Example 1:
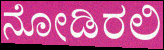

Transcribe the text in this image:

ನೋಡಿರಲಿ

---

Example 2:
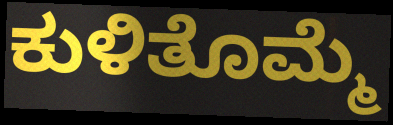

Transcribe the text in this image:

ಕುಳಿತೊಮ್ಮೆ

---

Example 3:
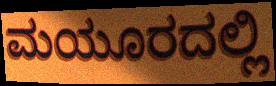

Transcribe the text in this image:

ಮಯೂರದಲ್ಲಿ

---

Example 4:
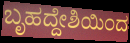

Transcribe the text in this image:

ಬೃಹದ್ದೇಶಿಯಿಂದ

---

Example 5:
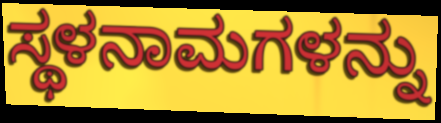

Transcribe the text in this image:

ಸ್ಥಳನಾಮಗಳನ್ನು